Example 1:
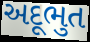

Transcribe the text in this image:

અદૂભુત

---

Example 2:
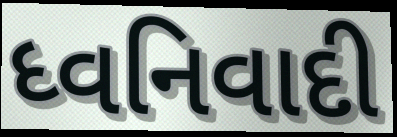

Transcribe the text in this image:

ધ્વનિવાદી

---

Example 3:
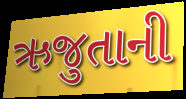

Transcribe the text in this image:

ઋજુતાની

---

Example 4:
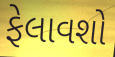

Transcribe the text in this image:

ફેલાવશો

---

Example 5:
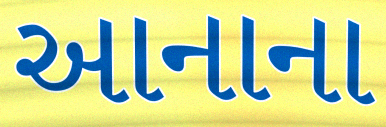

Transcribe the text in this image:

આનાના